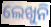
ଲେଖୁନି